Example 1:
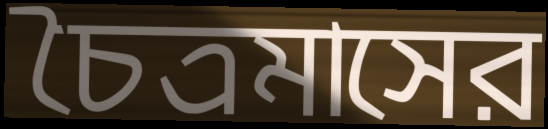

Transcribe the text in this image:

চৈত্রমাসের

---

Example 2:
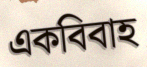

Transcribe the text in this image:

একবিবাহ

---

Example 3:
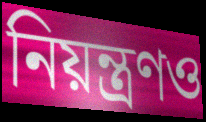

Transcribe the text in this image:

নিয়ন্ত্রণও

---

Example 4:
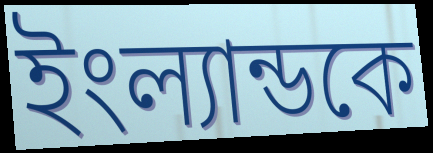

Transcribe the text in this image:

ইংল্যান্ডকে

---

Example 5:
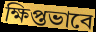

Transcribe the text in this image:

ক্ষিপ্তভাবে